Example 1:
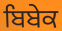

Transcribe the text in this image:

ਬਿਬੇਕ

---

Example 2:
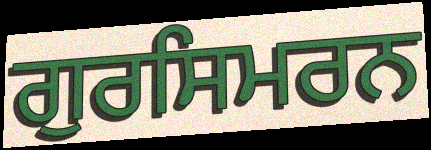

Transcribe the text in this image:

ਗੁਰਸਿਮਰਨ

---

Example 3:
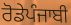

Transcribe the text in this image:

ਰੋਡੇਪੰਜਾਬੀ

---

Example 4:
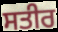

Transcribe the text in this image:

ਸਤੀਰ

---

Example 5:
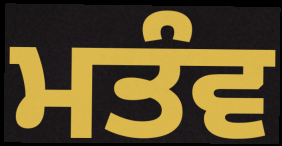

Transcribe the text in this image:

ਮਤੰਵ